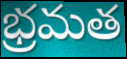
భ్రమత